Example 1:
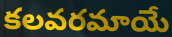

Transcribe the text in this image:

కలవరమాయే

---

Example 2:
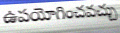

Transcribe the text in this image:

ఉపయోగించవచ్చు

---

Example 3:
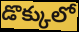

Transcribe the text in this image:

డొక్కులో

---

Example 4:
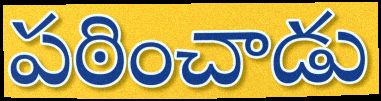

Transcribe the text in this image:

పఠించాడు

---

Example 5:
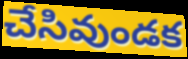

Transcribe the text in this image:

చేసివుండక